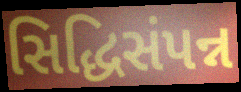
સિદ્ધિસંપન્ન